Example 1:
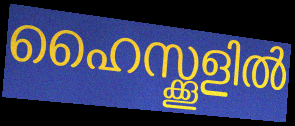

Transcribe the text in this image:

ഹൈസ്ക്കൂളിൽ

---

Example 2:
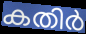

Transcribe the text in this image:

കതിർ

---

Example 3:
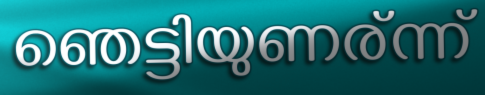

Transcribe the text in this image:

ഞെട്ടിയുണര്ന്ന്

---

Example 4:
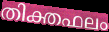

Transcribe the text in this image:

തിക്തഫലം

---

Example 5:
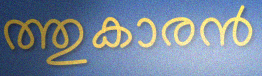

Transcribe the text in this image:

ത്തുകാരൻ